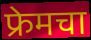
फ्रेमचा